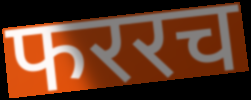
फररच